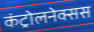
कंट्रोलनेक्सस